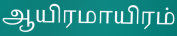
ஆயிரமாயிரம்